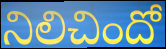
నిలిచిందో